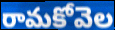
రామకోవెల